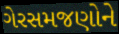
ગેરસમજણોને